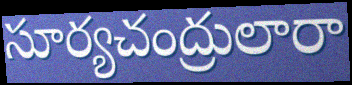
సూర్యచంద్రులారా